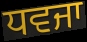
ਧਵਜਾ